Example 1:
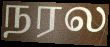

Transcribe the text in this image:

நரல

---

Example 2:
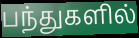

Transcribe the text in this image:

பந்துகளில்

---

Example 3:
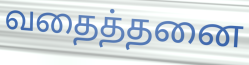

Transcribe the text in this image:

வதைத்தனை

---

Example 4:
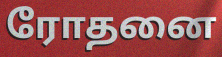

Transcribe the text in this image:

ரோதனை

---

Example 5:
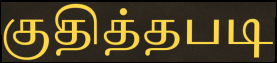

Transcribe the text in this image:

குதித்தபடி